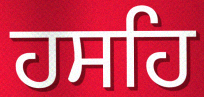
ਹਸਹਿ